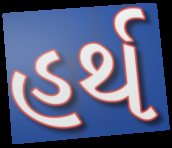
હર્થ